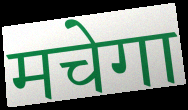
मचेगा